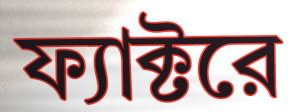
ফ্যাক্টরে